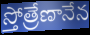
స్తోత్రేణానేన